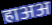
हाअअ